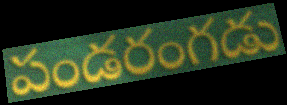
పండరంగడు